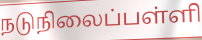
நடுநிலைப்பள்ளி